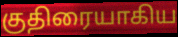
குதிரையாகிய